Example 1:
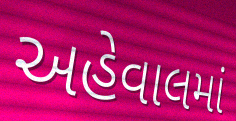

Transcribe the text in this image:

અહેવાલમાં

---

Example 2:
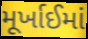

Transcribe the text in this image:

મૂર્ખાઈમાં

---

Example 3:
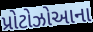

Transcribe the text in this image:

પ્રોટોઝોઆના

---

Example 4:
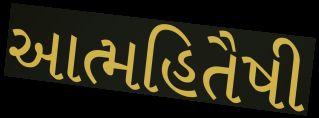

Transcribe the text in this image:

આત્મહિતૈષી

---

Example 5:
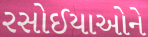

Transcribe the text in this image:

રસોઈયાઓને